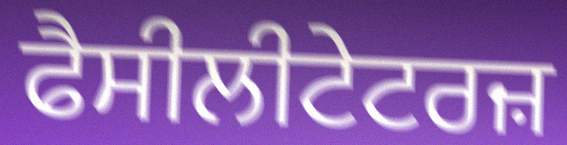
ਫੈਸੀਲੀਟੇਟਰਜ਼